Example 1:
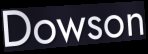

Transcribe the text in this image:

Dowson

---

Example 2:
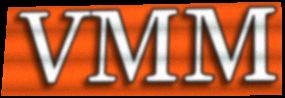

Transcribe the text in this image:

VMM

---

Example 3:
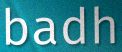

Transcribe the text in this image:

badh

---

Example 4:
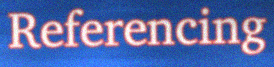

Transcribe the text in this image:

Referencing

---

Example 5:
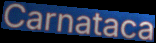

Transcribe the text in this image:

Carnataca